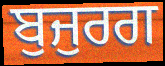
ਬੁਜੁਰਗ